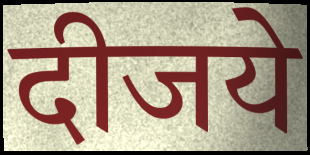
दीजये